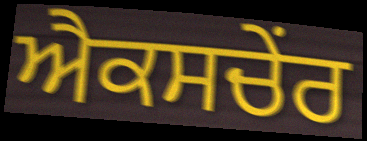
ਐਕਸਚੇਂਰ